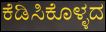
ಕೆಡಿಸಿಕೊಳ್ಳದ